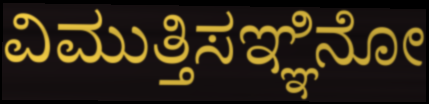
ವಿಮುತ್ತಿಸಞ್ಞಿನೋ